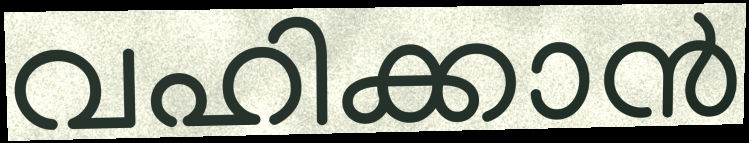
വഹിക്കാൻ